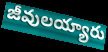
జీవులయ్యారు